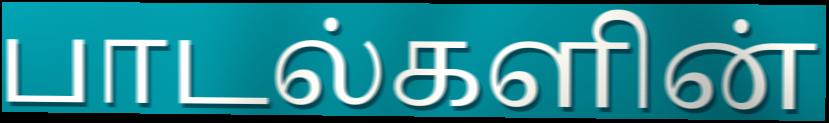
பாடல்களின்